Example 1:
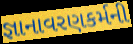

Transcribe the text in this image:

જ્ઞાનાવરણકર્મની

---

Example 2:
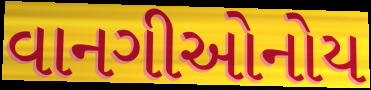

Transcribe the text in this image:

વાનગીઓનોય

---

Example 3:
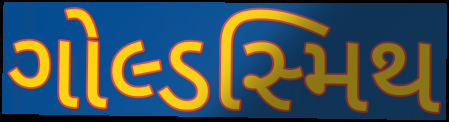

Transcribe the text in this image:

ગોલ્ડસ્મિથ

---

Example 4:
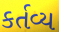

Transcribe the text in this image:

કર્તવ્ય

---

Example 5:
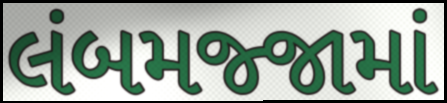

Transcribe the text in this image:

લંબમજ્જામાં